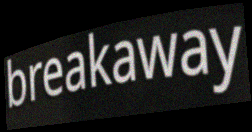
breakaway